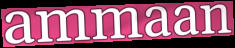
ammaan